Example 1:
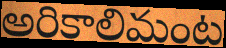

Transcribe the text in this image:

అరికాలిమంట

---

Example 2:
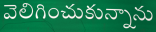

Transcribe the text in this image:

వెలిగించుకున్నాను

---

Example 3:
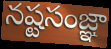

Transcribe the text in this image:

నష్టసంజ్ఞా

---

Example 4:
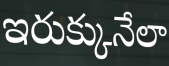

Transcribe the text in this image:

ఇరుక్కునేలా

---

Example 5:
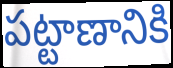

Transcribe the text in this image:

పట్టాణానికి